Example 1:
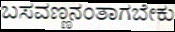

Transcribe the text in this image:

ಬಸವಣ್ಣನಂತಾಗಬೇಕು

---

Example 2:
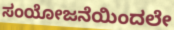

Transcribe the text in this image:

ಸಂಯೋಜನೆಯಿಂದಲೇ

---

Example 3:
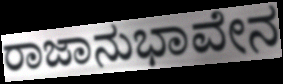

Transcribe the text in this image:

ರಾಜಾನುಭಾವೇನ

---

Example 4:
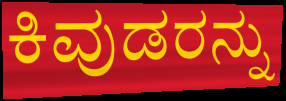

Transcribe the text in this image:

ಕಿವುಡರನ್ನು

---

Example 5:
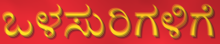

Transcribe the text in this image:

ಒಳಸುರಿಗಳಿಗೆ